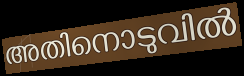
അതിനൊടുവിൽ